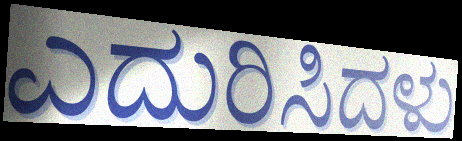
ಎದುರಿಸಿದಳು